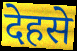
देहसे